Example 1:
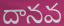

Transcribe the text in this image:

దానవ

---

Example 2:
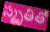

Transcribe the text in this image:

స్మృతితో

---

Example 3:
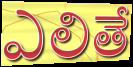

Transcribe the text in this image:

ఎలితే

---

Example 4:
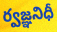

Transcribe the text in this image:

ర్వజ్ఞనిధీ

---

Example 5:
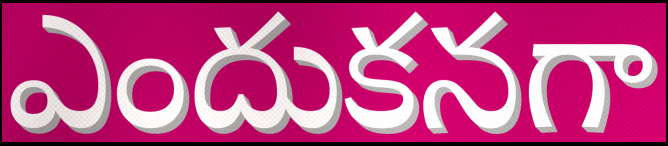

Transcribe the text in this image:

ఎందుకనగా